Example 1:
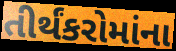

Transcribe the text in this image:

તીર્થંકરોમાંના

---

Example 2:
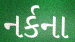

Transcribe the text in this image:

નર્કના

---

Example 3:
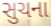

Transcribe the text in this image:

સુચના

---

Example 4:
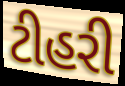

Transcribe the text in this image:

ટીહરી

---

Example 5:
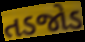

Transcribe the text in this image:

તડજોડ